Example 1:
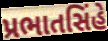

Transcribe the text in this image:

પ્રભાતસિંહે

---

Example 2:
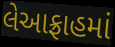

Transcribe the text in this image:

લેઆફ્રાહમાં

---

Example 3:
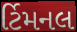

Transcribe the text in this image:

ર્ટિમનલ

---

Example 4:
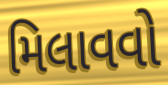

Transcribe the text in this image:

મિલાવવો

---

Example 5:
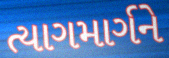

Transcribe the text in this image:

ત્યાગમાર્ગને